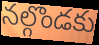
నల్గొండకు